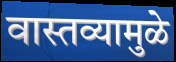
वास्तव्यामुळे